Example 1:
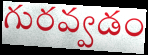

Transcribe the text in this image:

గురవ్వడం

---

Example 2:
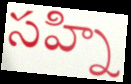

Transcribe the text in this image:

సహ్ని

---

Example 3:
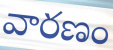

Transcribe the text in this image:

వారణం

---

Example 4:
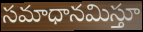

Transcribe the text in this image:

సమాధానమిస్తూ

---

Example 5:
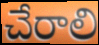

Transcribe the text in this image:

చేరాలి